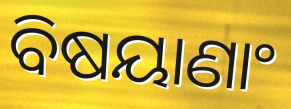
ବିଷୟାଣାଂ